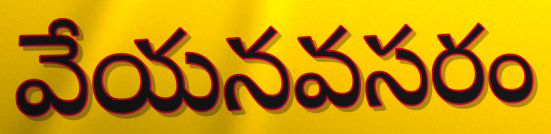
వేయనవసరం